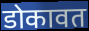
डोकावत